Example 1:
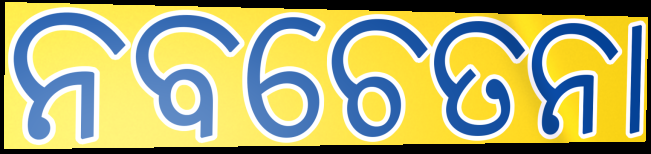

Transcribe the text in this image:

ନବଚେତନା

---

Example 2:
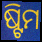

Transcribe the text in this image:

ଷ୍ଟିମ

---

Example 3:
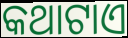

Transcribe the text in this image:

କଥାଟାଏ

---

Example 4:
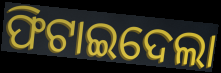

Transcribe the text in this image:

ଫିଟାଇଦେଲା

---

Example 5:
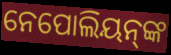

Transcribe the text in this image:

ନେପୋଲିୟନ୍‍ଙ୍କ